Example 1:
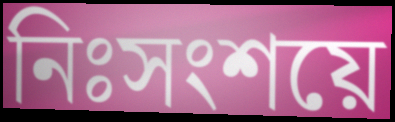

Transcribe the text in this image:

নিঃসংশয়ে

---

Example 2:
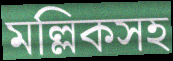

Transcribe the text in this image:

মল্লিকসহ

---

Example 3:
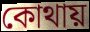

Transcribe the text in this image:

কোথায়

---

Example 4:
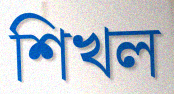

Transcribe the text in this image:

শিখল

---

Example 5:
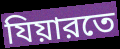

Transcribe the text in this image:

যিয়ারতে